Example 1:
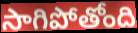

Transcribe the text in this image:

సాగిపోతోంది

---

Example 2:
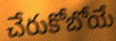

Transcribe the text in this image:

చేరుకోబోయే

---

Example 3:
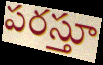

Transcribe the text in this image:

పరస్తూ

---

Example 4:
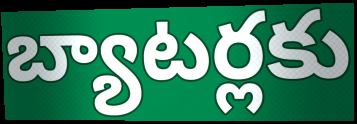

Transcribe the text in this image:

బ్యాటర్లకు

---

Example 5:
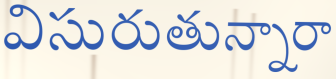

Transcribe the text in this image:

విసురుతున్నారా